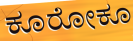
ಕೂರೋಕೂ